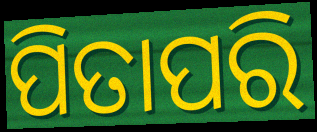
ପିତାପରି